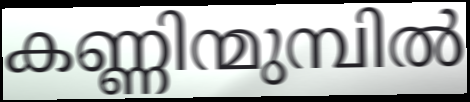
കണ്ണിന്മുമ്പിൽ